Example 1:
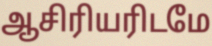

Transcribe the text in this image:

ஆசிரியரிடமே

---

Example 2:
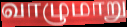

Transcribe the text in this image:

வாழுமாறு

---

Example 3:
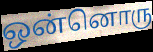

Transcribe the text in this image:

ஒன்னொரு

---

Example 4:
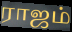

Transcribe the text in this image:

ராஜம்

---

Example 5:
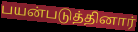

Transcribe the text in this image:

பயன்படுத்தினார்